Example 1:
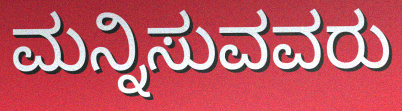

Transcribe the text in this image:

ಮನ್ನಿಸುವವರು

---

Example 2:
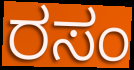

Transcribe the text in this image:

ರಸಂ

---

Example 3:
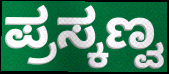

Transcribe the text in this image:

ಪ್ರಸ್ಕಣ್ವ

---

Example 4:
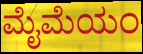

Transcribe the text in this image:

ಮೈಮೆಯಂ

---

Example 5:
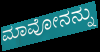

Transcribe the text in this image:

ಮಾವೋನನ್ನು